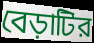
বেড়াটির